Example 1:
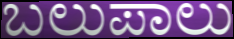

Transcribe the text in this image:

ಬಲುಪಾಲು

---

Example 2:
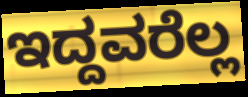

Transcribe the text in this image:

ಇದ್ದವರೆಲ್ಲ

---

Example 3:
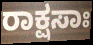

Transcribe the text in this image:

ರಾಕ್ಷಸಾಃ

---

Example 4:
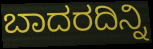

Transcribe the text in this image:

ಬಾದರದಿನ್ನಿ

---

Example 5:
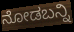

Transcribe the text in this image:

ನೋಡಬನ್ನಿ